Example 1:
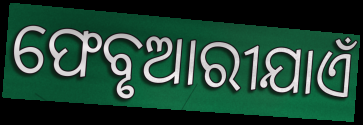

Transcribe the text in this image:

ଫେବୃଆରୀଯାଏଁ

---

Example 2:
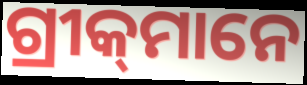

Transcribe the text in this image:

ଗ୍ରୀକ୍‍ମାନେ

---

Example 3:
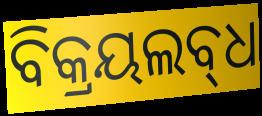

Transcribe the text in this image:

ବିକ୍ରୟଲବ୍‌ଧ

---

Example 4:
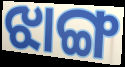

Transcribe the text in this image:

ଝାଙ୍ଗ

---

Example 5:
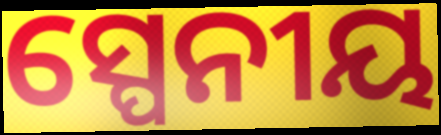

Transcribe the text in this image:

ସ୍ପେନୀୟ